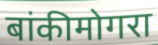
बांकीमोगरा